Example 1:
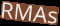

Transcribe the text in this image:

RMAs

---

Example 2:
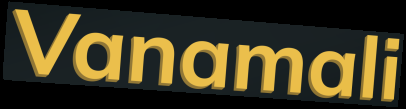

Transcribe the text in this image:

Vanamali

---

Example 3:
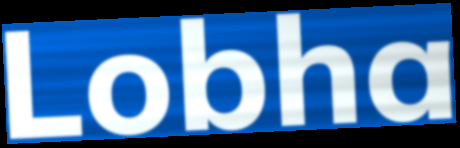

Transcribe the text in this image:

Lobha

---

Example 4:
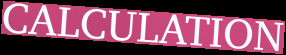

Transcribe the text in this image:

CALCULATION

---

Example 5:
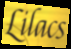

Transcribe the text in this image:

Lilacs